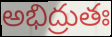
అభిద్రుతః